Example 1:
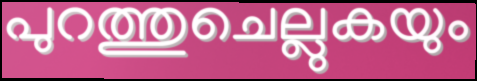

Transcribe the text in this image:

പുറത്തുചെല്ലുകയും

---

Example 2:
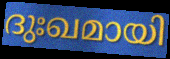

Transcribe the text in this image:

ദുഃഖമായി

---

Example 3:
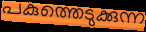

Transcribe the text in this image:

പകുത്തെടുക്കുന്ന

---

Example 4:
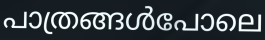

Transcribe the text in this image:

പാത്രങ്ങൾപോലെ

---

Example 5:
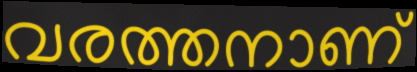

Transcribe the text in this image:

വരത്തനാണ്